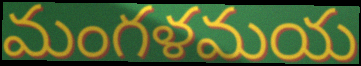
మంగళమయ